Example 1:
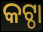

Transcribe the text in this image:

କଟ୍ଠା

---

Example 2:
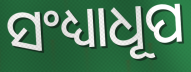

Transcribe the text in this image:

ସଂଧ୍ୟାଧୂପ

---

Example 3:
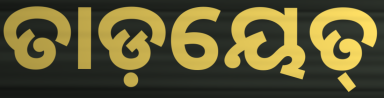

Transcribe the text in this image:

ତାଡ଼ୟେତ୍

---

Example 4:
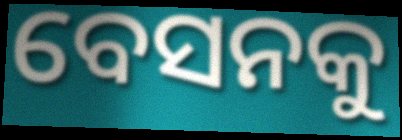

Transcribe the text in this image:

ବେସନକୁ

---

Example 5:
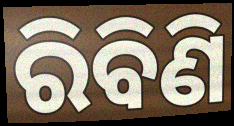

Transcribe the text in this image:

ରିବିଣି